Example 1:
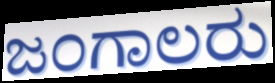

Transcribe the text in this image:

ಜಂಗಾಲರು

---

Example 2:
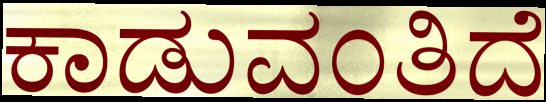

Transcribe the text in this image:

ಕಾಡುವಂತಿದೆ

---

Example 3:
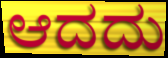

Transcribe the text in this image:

ಆದದು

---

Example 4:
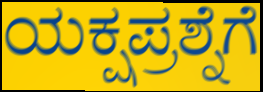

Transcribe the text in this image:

ಯಕ್ಷಪ್ರಶ್ನೆಗೆ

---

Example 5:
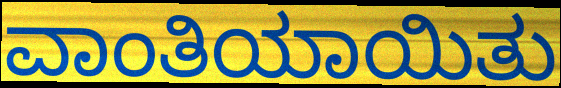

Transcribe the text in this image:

ವಾಂತಿಯಾಯಿತು